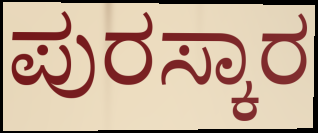
ಪುರಸ್ಕಾರ